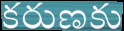
కరుణకు